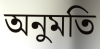
অনুমতি